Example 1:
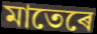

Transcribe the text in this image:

মাতেৰে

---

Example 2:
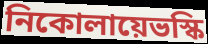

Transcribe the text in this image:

নিকোলায়েভস্কি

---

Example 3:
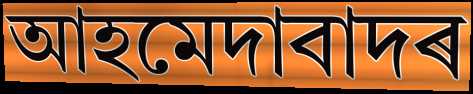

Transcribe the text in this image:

আহমেদাবাদৰ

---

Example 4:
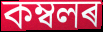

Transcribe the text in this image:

কম্বলৰ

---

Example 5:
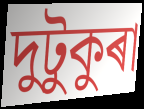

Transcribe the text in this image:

দুটুকুৰা